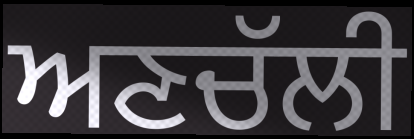
ਅਣਚੱਲੀ